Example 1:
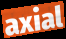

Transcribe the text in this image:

axial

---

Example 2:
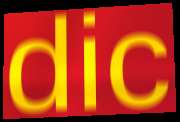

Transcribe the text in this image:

dic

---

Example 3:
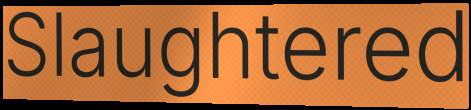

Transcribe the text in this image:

Slaughtered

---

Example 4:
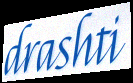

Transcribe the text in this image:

drashti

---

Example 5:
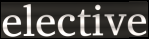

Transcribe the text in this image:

elective